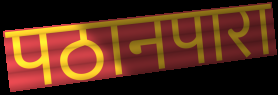
पठानपारा